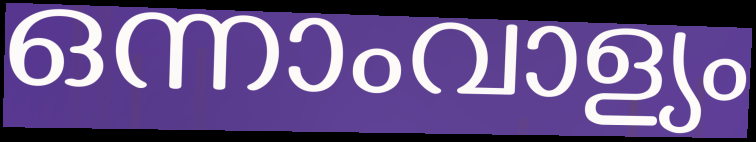
ഒന്നാംവാള്യം